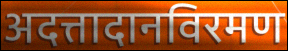
अदत्तादानविरमण